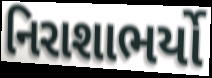
નિરાશાભર્યો